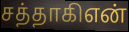
சத்தாகிஎன்